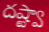
దష్ట్వా